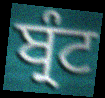
ਬ੍ਰੰਟ